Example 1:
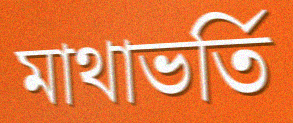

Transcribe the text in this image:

মাথাভর্তি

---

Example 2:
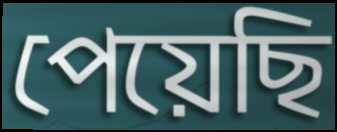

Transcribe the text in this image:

পেয়েছি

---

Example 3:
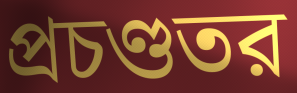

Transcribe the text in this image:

প্রচণ্ডতর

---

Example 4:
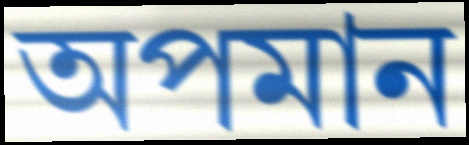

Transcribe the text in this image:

অপমান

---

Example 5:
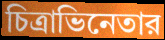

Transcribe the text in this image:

চিত্রাভিনেতার